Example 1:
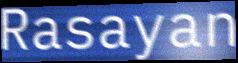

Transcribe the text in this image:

Rasayan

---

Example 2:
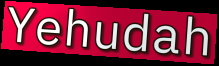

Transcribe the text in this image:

Yehudah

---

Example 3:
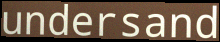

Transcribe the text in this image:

undersand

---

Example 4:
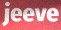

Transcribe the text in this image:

jeeve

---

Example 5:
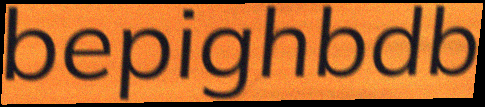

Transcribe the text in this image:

bepighbdb